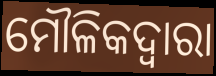
ମୌଳିକଦ୍ଵାରା